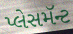
પ્લેસમૅન્ટ